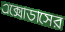
এক্সোডাসের